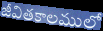
జీవితకాలములో